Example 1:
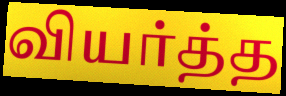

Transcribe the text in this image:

வியர்த்த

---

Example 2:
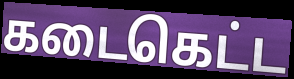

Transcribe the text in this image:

கடைகெட்ட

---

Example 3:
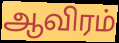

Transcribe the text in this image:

ஆவிரம்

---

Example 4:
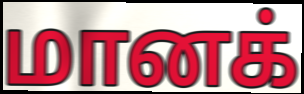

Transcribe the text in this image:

மானக்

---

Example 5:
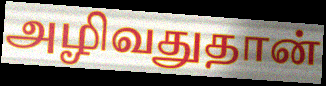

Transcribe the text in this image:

அழிவதுதான்